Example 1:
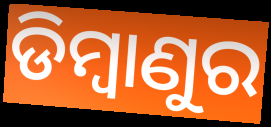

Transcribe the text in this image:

ଡିମ୍ବାଣୁର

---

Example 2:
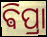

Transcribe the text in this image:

ଵିପ୍ରା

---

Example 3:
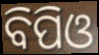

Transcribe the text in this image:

ବିପିଓ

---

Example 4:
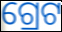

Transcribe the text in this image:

ଗ୍ରେଟ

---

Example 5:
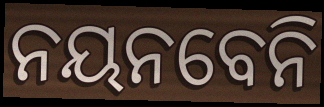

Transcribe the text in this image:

ନୟନବେନି